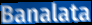
Banalata